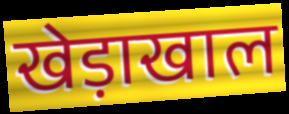
खेड़ाखाल